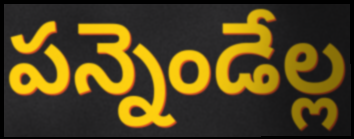
పన్నెండేల్ల